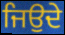
ਜਿਉਦੇ